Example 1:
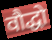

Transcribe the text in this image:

वौद्धो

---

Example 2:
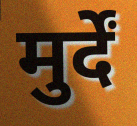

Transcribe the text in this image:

मुर्दें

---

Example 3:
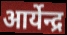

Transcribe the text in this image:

आर्येन्द्र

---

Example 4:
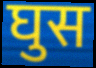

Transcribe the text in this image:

घुस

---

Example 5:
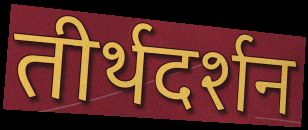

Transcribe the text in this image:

तीर्थदर्शन